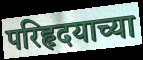
परिहृदयाच्या